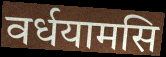
वर्धयामसि